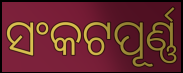
ସଂକଟପୂର୍ଣ୍ଣ